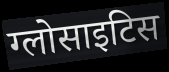
ग्लोसाइटिस